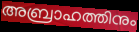
അബ്രാഹത്തിനും